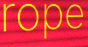
rope